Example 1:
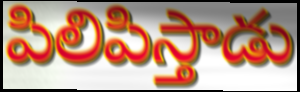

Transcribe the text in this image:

పిలిపిస్తాడు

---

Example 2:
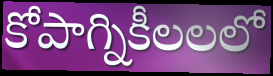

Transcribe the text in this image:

కోపాగ్నికీలలలో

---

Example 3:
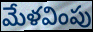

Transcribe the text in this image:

మేళవింపు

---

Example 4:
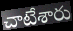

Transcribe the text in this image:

చాటేశారు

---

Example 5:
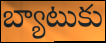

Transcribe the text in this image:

బ్యాటుకు